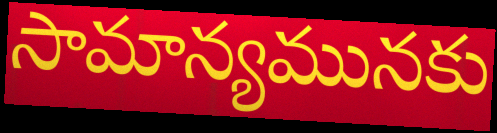
సామాన్యమునకు